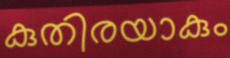
കുതിരയാകും